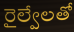
రైల్వేలతో